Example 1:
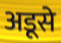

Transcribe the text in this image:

अडूसे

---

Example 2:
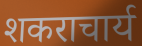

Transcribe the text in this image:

शकराचार्य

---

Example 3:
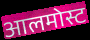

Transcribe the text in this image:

आलमोस्ट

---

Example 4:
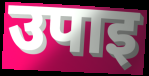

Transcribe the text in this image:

उपाइ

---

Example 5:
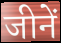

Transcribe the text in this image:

जीनें